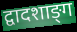
द्वादशाङ्ग